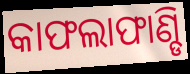
କାଫଲାଫାଣ୍ଡି